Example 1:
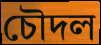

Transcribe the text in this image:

চৌদল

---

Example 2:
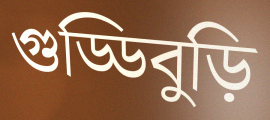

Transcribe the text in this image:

গুড্ডিবুড়ি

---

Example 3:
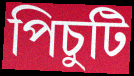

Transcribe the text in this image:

পিচুটি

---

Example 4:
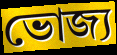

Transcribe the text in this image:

ভোজ্য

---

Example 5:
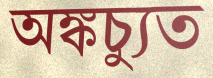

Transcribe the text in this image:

অঙ্কচ্যুত